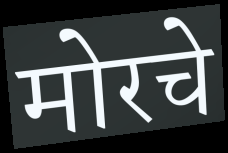
मोरचे